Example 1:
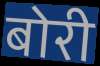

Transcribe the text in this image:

बोरी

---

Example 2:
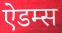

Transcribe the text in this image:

ऐडम्स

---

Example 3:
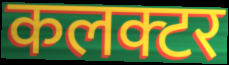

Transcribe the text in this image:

कलक्‍टर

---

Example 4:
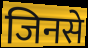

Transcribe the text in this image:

जिनसे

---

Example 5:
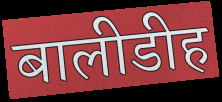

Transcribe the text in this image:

बालीडीह